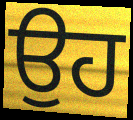
ਉਹ